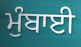
ਮੁੰਬਾਈ